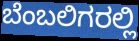
ಬೆಂಬಲಿಗರಲ್ಲಿ